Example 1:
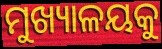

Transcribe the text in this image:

ମୁଖ୍ୟାଳୟକୁ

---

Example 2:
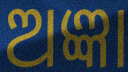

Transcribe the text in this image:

ଅଜ୍ଞା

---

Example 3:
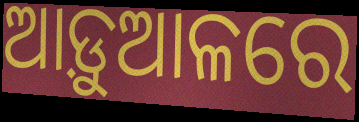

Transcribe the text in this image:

ଆଡ଼ୁଆଳରେ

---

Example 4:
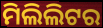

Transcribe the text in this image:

ମିଲିଲିଟର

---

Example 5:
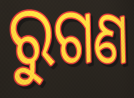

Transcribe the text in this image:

ରୁଗଣ